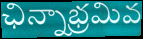
ఛిన్నాభ్రమివ